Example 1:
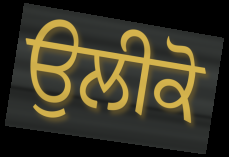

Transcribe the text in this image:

ਉਲੀਕੋ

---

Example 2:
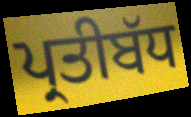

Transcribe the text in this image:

ਪ੍ਰਤੀਬੱਧ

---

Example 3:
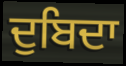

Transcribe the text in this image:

ਦੁਬਿਦਾ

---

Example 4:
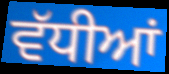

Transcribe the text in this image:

ਵੱਧੀਆਂ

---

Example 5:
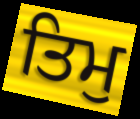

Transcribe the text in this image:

ਤਿਮੁ